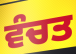
ਵੰਚਤ